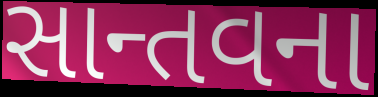
સાન્તવના